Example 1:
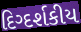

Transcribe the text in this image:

દિગ્દર્શકીય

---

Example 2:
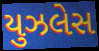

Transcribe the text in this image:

યુઝલેસ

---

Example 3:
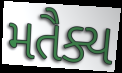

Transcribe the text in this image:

મતૈક્ય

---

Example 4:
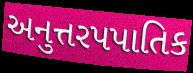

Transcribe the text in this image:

અનુત્તરપપાતિક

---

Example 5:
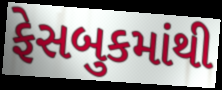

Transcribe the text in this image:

ફેસબુકમાંથી